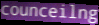
counceilng